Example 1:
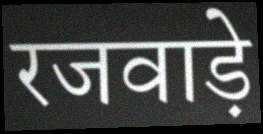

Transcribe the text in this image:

रजवाड़े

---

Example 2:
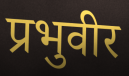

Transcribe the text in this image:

प्रभुवीर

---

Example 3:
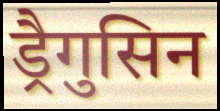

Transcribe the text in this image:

ड्रैगुसिन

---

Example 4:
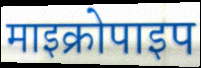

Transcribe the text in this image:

माइक्रोपाइप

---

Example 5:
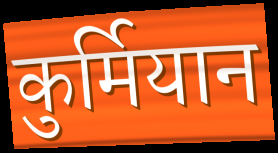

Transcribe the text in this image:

कुर्मियान